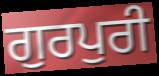
ਗੁਰਪੁਰੀ